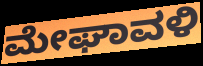
ಮೇಘಾವಳಿ